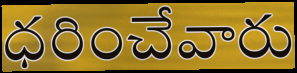
ధరించేవారు